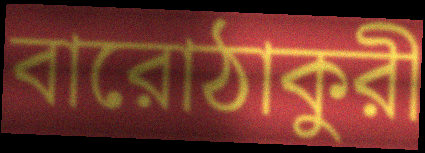
বারোঠাকুরী